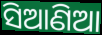
ସିଆଣିଆ